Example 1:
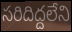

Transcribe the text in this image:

సరిదిద్దలేని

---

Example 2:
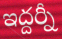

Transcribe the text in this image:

ఇద్దర్నీ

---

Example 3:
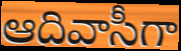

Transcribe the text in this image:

ఆదివాసీగా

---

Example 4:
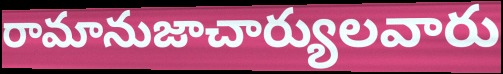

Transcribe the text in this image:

రామానుజాచార్యులవారు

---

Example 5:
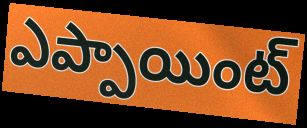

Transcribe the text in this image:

ఎప్పాయింట్